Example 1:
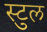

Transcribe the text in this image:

स्टुल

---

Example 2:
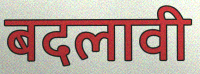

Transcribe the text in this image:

बदलावी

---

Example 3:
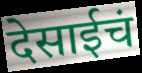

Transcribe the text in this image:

देसाईचं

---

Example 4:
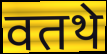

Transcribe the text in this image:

वतथे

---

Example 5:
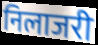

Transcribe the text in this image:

निलाजरी